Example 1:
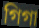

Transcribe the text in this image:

গিগা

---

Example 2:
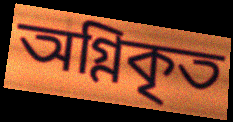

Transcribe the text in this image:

অগ্নিকৃত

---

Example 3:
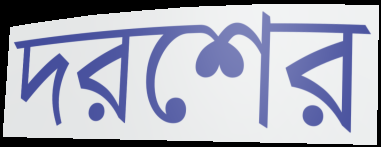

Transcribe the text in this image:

দরশের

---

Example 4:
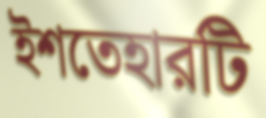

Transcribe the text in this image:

ইশতেহারটি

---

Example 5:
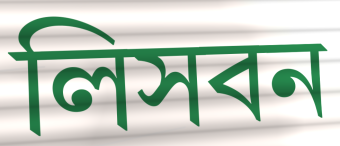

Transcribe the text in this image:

লিসবন